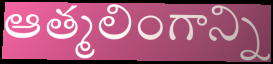
ఆత్మలింగాన్ని